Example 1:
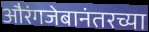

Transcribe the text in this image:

औरंगजेबानंतरच्या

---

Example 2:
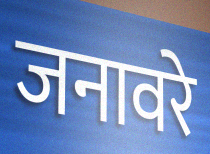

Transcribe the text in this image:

जनावरे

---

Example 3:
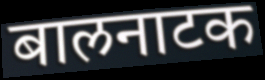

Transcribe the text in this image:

बालनाटक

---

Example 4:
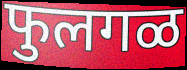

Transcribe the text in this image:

फुलगळ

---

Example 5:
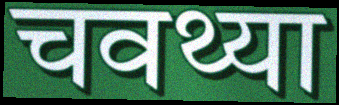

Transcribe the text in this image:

चवथ्या